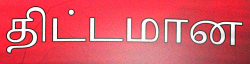
திட்டமான